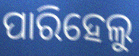
ପାରିହେଲୁ